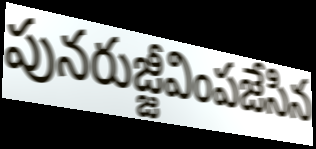
పునరుజ్జీవింపజేసిన